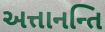
અત્તાનન્તિ